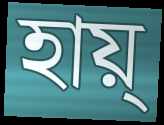
হায়্